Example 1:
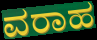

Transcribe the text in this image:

ವರಾಹ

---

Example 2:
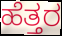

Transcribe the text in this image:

ಹೆತ್ತರ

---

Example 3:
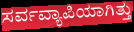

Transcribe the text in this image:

ಸರ್ವವ್ಯಾಪಿಯಾಗಿತ್ತು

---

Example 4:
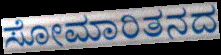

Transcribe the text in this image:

ಸೋಮಾರಿತನದ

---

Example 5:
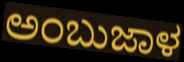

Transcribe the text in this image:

ಅಂಬುಜಾಳ